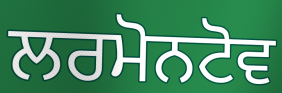
ਲਰਮੋਨਟੋਵ